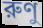
রুণু